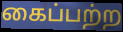
கைப்பற்ற